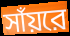
সাঁয়রে